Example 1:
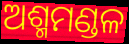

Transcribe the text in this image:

ଅଶ୍ମମଣ୍ଡଳ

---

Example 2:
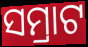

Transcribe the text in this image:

ସମ୍ରାଟ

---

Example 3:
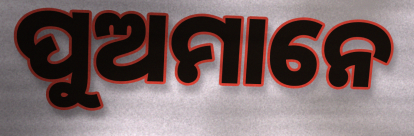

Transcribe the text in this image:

ପୁଅମାନେ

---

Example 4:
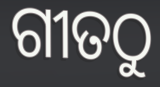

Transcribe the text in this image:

ଗୀତଠୁ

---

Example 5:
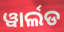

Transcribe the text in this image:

ୱାର୍ଲଡ